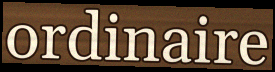
ordinaire